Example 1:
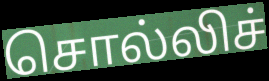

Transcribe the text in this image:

சொல்லிச்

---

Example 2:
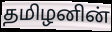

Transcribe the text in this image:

தமிழனின்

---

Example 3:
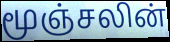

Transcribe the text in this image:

மூஞ்சலின்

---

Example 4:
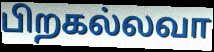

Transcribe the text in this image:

பிறகல்லவா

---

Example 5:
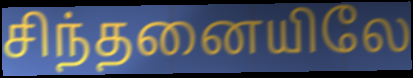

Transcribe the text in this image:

சிந்தனையிலே